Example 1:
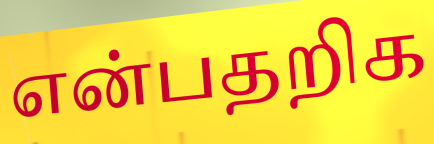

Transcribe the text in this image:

என்பதறிக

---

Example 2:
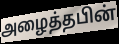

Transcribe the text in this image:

அழைத்தபின்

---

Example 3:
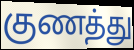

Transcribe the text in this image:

குணத்து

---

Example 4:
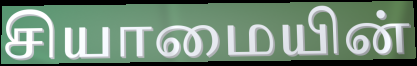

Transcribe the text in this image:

சியாமையின்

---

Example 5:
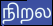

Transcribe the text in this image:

நிறல